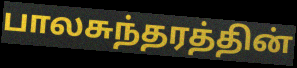
பாலசுந்தரத்தின்